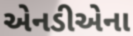
એનડીએના